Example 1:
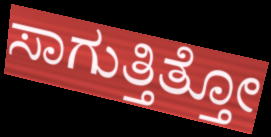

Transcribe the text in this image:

ಸಾಗುತ್ತಿತ್ತೋ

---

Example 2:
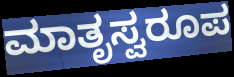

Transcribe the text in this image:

ಮಾತೃಸ್ವರೂಪ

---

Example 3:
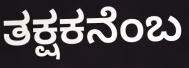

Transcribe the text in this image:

ತಕ್ಷಕನೆಂಬ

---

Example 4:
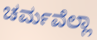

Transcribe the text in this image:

ಚರ್ಮವೆಲ್ಲಾ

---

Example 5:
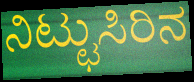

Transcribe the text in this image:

ನಿಟ್ಟುಸಿರಿನ